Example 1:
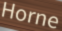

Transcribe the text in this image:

Horne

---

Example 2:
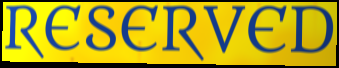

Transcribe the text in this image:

RESERVED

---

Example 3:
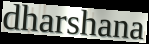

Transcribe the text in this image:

dharshana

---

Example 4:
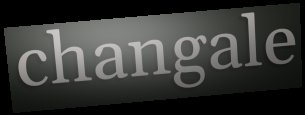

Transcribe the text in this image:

changale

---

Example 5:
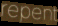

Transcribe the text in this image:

repent